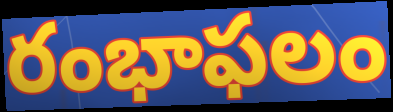
రంభాఫలం